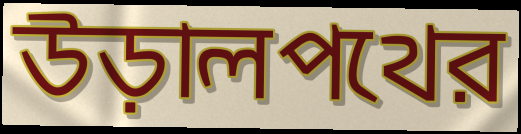
উড়ালপথের